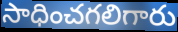
సాధించగలిగారు